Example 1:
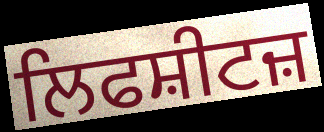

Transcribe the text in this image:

ਲਿਫਸ਼ੀਟਜ਼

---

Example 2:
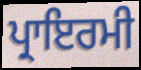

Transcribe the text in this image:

ਪ੍ਰਾਇਰਮੀ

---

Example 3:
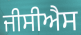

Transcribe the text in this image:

ਜੀਸੀਐਸ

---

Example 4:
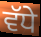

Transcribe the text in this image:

ਵੱਧੇ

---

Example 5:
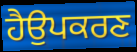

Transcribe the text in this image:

ਹੈਉਪਕਰਣ